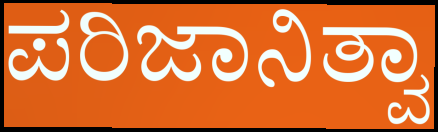
ಪರಿಜಾನಿತ್ವಾ